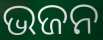
ଭଜନ